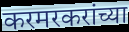
करमरकरांच्या